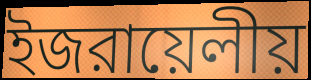
ইজরায়েলীয়